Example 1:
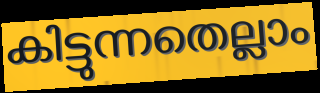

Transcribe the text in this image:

കിട്ടുന്നതെല്ലാം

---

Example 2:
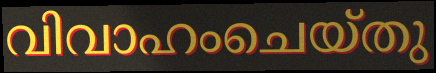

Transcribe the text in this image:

വിവാഹംചെയ്തു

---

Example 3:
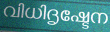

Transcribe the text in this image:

വിധിദൃഷ്ടേന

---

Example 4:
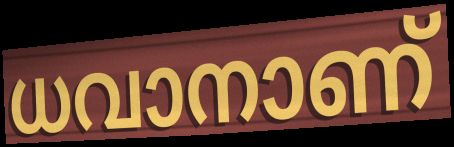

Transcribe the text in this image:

ധവാനാണ്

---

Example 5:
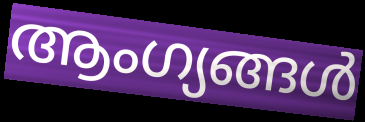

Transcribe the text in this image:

ആംഗ്യങ്ങൾ